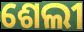
ଶେଲୀ